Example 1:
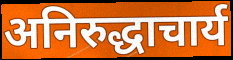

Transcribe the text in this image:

अनिरुद्धाचार्य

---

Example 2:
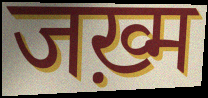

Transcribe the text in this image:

जख़्म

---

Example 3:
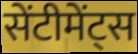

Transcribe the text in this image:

सेंटीमेंट्स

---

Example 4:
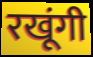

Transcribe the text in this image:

रखूंगी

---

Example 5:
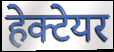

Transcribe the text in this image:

हेक्टेयर